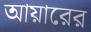
আয়ারের